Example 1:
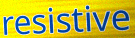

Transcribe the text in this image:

resistive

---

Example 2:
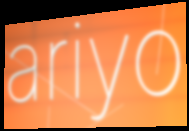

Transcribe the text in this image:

ariyo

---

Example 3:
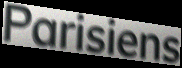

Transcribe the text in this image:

Parisiens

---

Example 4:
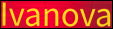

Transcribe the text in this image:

Ivanova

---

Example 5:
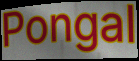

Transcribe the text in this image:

Pongal